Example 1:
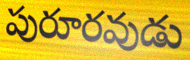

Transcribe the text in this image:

పురూరవుడు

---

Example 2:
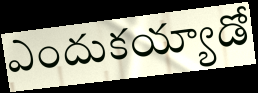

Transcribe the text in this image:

ఎందుకయ్యాడో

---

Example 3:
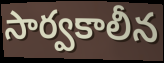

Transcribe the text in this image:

సార్వకాలీన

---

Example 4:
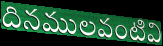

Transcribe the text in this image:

దినములవంటివి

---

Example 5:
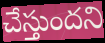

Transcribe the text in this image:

చేస్తుందని